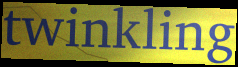
twinkling